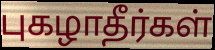
புகழாதீர்கள்